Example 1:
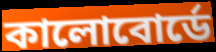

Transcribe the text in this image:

কালোবোর্ডে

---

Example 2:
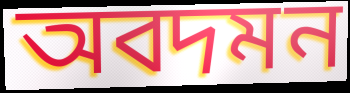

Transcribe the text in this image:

অবদমন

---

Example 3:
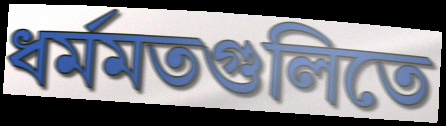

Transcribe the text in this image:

ধর্মমতগুলিতে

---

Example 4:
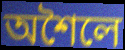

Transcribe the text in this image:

অশৈলে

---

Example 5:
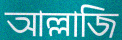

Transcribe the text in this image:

আল্লাজি